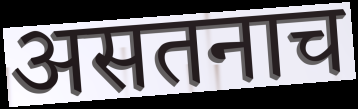
असतनाच